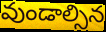
వుండాల్సిన